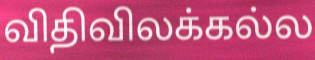
விதிவிலக்கல்ல